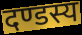
दण्डस्य